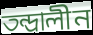
তন্দ্রালীন